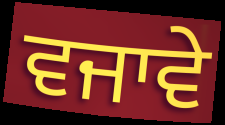
ਵਜਾਵੇ